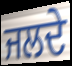
ਜਲਦੇ